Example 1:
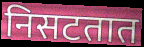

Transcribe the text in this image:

निसटतात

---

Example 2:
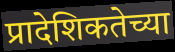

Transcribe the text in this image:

प्रादेशिकतेच्या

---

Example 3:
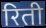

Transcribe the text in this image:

रिती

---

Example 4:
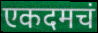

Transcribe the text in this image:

एकदमचं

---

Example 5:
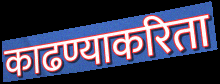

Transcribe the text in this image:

काढण्याकरिता